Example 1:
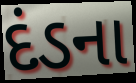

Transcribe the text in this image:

દંડના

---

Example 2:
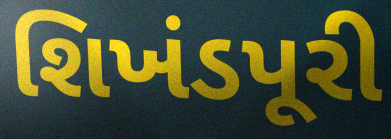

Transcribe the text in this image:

શિખંડપૂરી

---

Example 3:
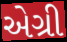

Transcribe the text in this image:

એગ્રી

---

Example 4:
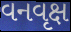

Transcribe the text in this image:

વનવૃક્ષ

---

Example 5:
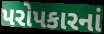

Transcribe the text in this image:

પરોપકારનાં